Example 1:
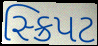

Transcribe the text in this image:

સ્ક્રિપટ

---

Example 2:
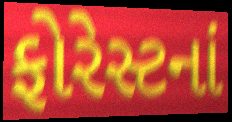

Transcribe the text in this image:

ફોરેસ્ટનાં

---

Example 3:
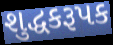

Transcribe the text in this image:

શુદ્ધકરૂપક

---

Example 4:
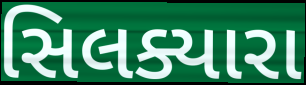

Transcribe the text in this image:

સિલક્યારા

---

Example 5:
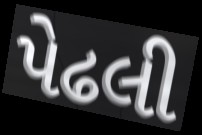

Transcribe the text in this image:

પેઢલી